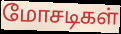
மோசடிகள்